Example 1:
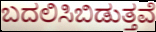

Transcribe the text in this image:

ಬದಲಿಸಿಬಿಡುತ್ತವೆ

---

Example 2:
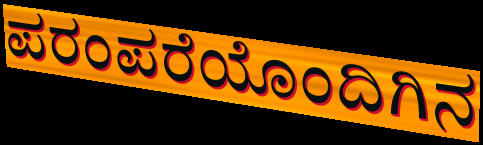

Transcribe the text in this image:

ಪರಂಪರೆಯೊಂದಿಗಿನ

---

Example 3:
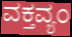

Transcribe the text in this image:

ವಕ್ತವ್ಯಂ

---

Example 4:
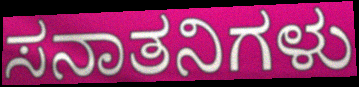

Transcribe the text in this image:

ಸನಾತನಿಗಳು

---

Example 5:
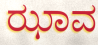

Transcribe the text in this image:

ಝಾವ